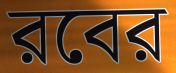
রবের